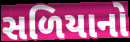
સળિયાનો